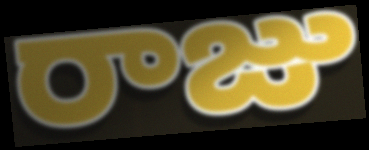
రాజు